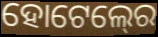
ହୋଟେଲ୍‍ରେ